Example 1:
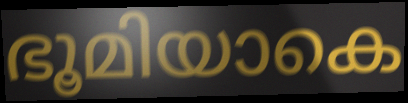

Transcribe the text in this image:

ഭൂമിയാകെ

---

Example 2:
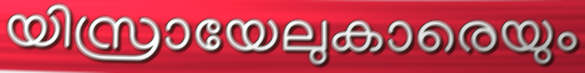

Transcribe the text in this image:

യിസ്രായേലുകാരെയും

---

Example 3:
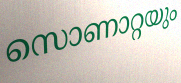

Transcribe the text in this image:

സൊണാറ്റയും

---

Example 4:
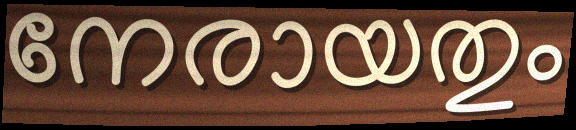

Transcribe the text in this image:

നേരായതും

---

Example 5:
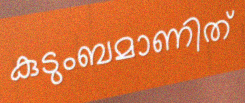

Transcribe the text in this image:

കുടുംബമാണിത്